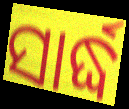
ସାର୍ଦ୍ଧ